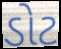
ડોટ